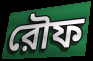
রৌফ